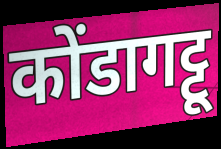
कोंडागट्टू